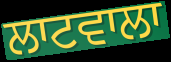
ਲਾਟਵਾਲਾ